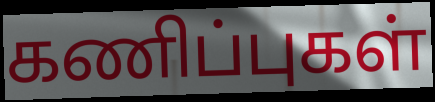
கணிப்புகள்